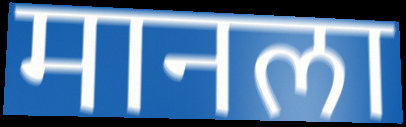
मानला